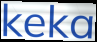
keka